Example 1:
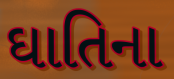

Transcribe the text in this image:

ઘાતિના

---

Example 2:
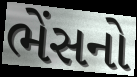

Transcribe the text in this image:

ભેંસનો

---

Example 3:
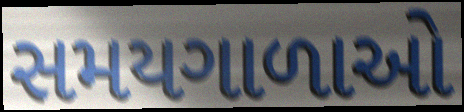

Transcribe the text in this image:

સમયગાળાઓ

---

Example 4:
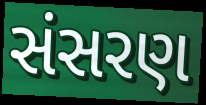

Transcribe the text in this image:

સંસરણ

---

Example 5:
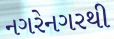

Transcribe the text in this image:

નગરેનગરથી